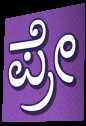
ಪ್ರೇ